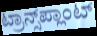
ಟ್ರಾನ್ಸ್‌ಪ್ಲಾಂಟ್